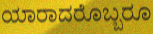
ಯಾರಾದರೊಬ್ಬರೂ